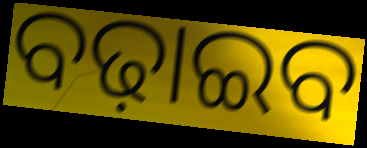
ବଢ଼ାଇବ